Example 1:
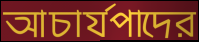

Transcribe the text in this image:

আচার্যপাদের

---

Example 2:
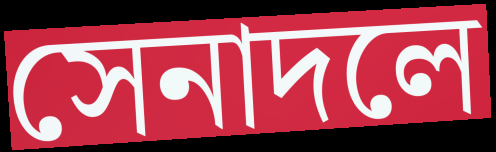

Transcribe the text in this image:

সেনাদলে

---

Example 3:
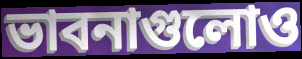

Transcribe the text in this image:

ভাবনাগুলোও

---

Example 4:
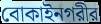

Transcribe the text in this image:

বোকাইনগরীর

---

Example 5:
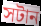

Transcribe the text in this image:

সটান